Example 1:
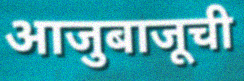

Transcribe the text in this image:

आजुबाजूची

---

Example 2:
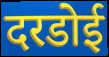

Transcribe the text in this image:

दरडोई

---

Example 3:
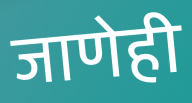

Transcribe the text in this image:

जाणेही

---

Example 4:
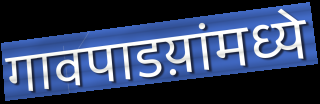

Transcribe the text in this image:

गावपाडय़ांमध्ये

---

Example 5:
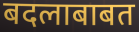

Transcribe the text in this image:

बदलाबाबत